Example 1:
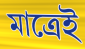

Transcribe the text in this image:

মাত্রেই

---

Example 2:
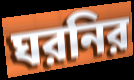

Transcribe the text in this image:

ঘরনির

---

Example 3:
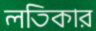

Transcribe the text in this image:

লতিকার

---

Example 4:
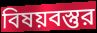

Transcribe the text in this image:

বিষয়বস্তুর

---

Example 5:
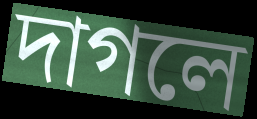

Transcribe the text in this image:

দাগলে